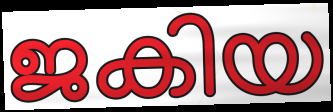
ജകിയ